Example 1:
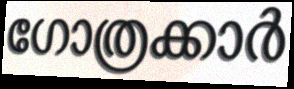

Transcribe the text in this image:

ഗോത്രക്കാർ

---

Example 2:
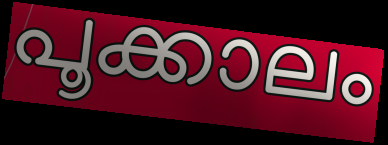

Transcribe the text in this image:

പൂക്കാലം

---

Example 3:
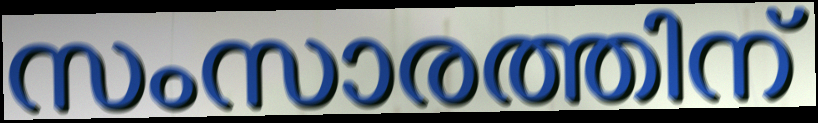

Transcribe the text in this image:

സംസാരത്തിന്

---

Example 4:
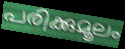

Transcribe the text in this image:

പരിക്കുമൂലം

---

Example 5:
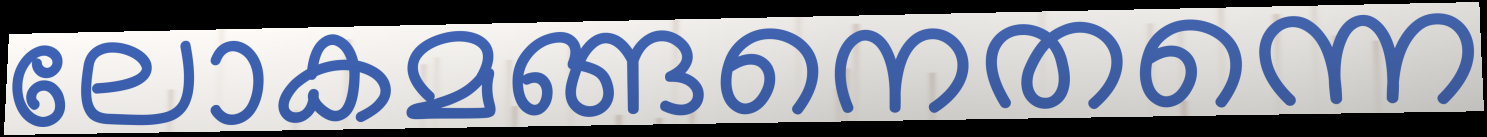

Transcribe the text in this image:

ലോകമങ്ങനെതന്നെ